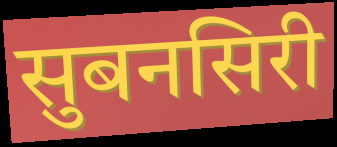
सुबनसिरी